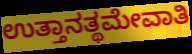
ಉತ್ತಾನತ್ಥಮೇವಾತಿ